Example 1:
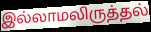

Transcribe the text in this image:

இல்லாமலிருத்தல்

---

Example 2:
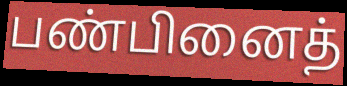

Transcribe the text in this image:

பண்பினைத்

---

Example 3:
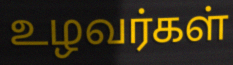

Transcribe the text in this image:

உழவர்கள்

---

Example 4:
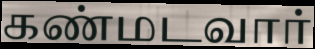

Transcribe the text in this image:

கண்மடவார்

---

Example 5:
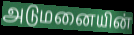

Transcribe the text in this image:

அடுமனையின்